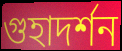
গুহাদর্শন